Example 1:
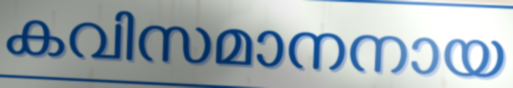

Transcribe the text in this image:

കവിസമാനനായ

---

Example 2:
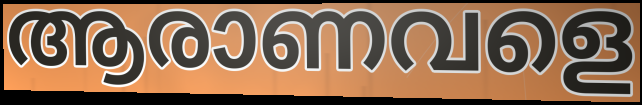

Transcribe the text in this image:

ആരാണവളെ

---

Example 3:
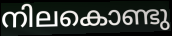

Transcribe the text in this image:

നിലകൊണ്ടു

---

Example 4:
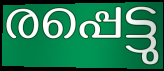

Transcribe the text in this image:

രപ്പെട്ടു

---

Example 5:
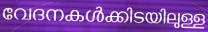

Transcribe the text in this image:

വേദനകൾക്കിടയിലുള്ള